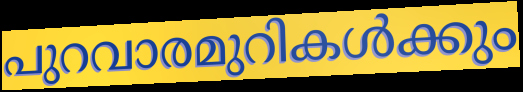
പുറവാരമുറികൾക്കും